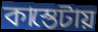
কাস্তেটায়